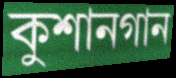
কুশানগান